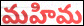
మహిమ